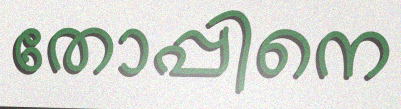
തോപ്പിനെ